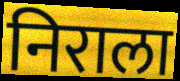
निराला